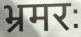
भ्रमरः